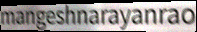
mangeshnarayanrao